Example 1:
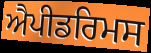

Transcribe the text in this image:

ਐਪੀਡਰਿਮਸ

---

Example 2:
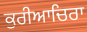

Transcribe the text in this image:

ਕੁਰੀਆਚਿਰਾ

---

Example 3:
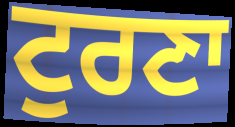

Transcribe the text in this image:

ਟੁਰਣਾ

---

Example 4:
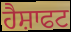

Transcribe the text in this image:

ਹੈਸ਼ਾਫਟ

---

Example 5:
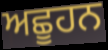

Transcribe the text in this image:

ਅਛੂਹਨ